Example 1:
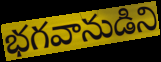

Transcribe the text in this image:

భగవానుడిని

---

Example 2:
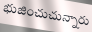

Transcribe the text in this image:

భుజించుచున్నారు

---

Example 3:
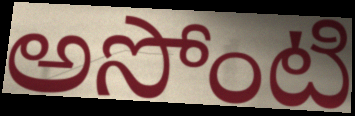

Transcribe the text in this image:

అసోంటి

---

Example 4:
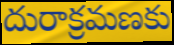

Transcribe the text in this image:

దురాక్రమణకు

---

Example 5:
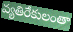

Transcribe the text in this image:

వ్యతిరేకులంతా